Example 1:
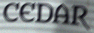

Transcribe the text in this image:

CEDAR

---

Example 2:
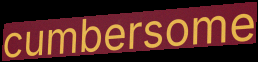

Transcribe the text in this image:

cumbersome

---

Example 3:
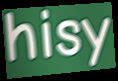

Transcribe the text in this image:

hisy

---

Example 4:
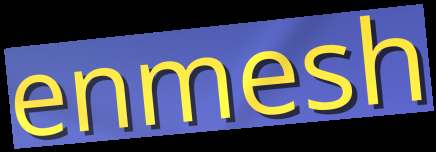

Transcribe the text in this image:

enmesh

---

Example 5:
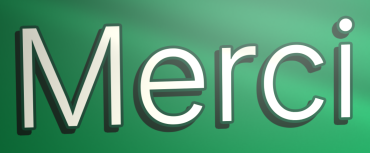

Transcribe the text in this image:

Merci